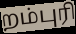
றம்புரி